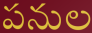
పనుల